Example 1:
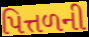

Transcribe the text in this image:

પિત્તળની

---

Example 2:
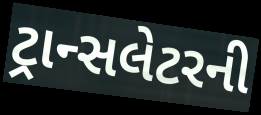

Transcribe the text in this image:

ટ્રાન્સલેટરની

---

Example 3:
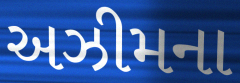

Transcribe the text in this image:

અઝીમના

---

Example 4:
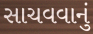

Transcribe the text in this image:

સાચવવાનું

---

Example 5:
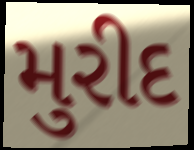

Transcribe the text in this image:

મુરીદ